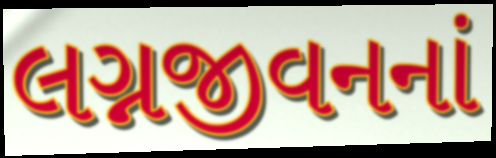
લગ્નજીવનનાં